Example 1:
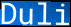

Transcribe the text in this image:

Duli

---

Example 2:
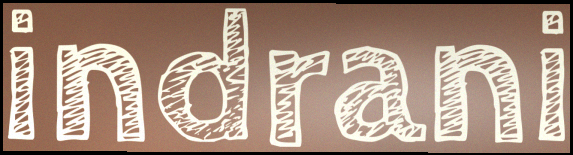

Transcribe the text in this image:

indrani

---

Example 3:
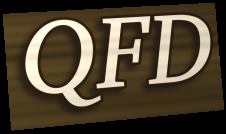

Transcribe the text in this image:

QFD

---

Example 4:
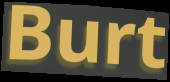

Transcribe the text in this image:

Burt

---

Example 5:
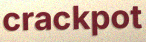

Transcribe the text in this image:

crackpot